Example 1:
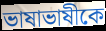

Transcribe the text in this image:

ভাষাভাষীকে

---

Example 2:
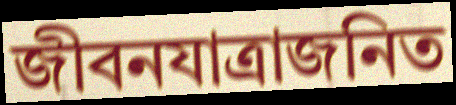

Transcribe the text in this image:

জীবনযাত্রাজনিত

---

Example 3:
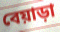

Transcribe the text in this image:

বেয়াড়া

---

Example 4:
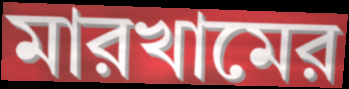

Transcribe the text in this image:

মারখামের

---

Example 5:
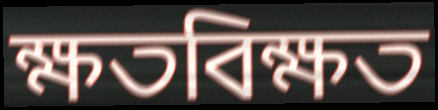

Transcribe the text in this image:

ক্ষতবিক্ষত